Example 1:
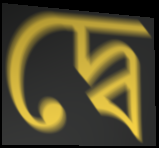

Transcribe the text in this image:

দ্বে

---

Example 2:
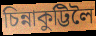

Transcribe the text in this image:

চিন্নাকুট্টিলৈ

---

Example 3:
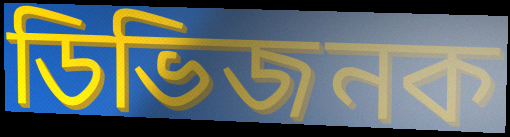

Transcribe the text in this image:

ডিভিজনক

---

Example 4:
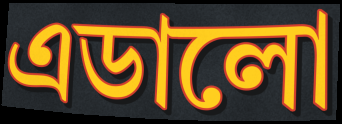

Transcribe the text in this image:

এডালো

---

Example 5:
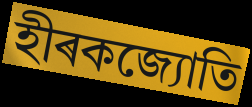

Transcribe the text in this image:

হীৰকজ্যোতি